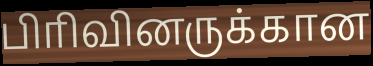
பிரிவினருக்கான